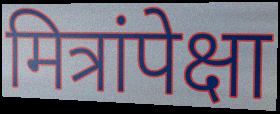
मित्रांपेक्षा